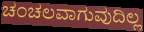
ಚಂಚಲವಾಗುವುದಿಲ್ಲ